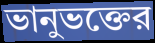
ভানুভক্তের